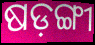
ଷଡ଼ଙ୍ଗୀ